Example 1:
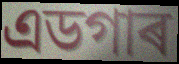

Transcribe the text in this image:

এডগাৰ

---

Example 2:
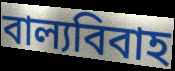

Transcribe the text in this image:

বাল্যবিবাহ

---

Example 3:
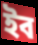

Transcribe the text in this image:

ইব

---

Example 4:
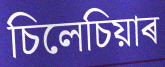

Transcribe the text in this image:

চিলেচিয়াৰ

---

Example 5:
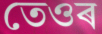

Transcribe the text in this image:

তেওৰ